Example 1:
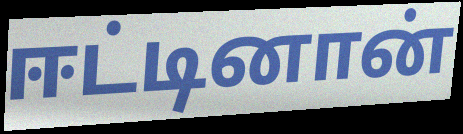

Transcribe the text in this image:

ஈட்டினான்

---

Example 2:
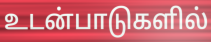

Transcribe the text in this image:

உடன்பாடுகளில்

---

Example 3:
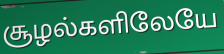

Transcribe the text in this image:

சூழல்களிலேயே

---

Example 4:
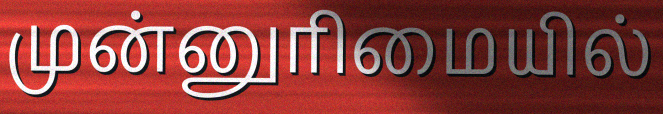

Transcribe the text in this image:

முன்னுரிமையில்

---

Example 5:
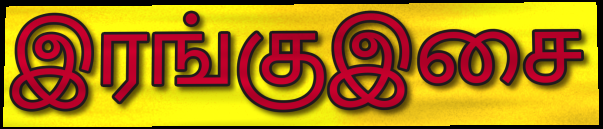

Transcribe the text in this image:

இரங்குஇசை